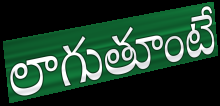
లాగుతూంటే